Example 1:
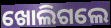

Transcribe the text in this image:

ଖୋଲିଗଲେ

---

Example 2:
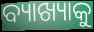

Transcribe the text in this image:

ବ୍ୟାଖ୍ୟାକୁ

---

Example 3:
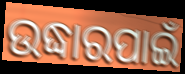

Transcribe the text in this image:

ଉଦ୍ଧାରପାଇଁ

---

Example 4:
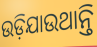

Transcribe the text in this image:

ଉଡ଼ିଯାଉଥାନ୍ତି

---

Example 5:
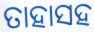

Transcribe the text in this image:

ତାହାସହ